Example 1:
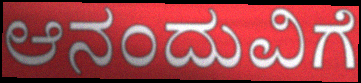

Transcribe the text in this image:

ಆನಂದುವಿಗೆ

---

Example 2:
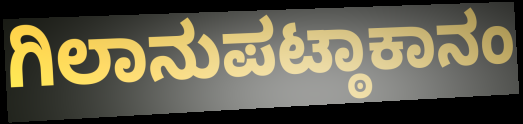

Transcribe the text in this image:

ಗಿಲಾನುಪಟ್ಠಾಕಾನಂ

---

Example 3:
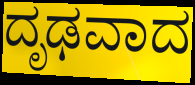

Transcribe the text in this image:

ದೃಢವಾದ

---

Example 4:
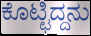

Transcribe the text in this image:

ಕೊಟ್ಟಿದ್ದನು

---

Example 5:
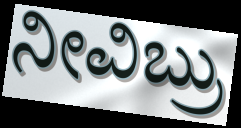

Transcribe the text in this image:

ನೀವಿಬ್ರು